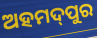
ଅହମଦ୍‌ପୁର